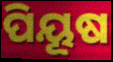
ପିୟୂଷ